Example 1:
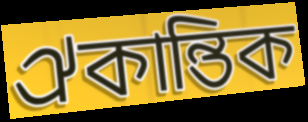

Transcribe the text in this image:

ঐকান্তিক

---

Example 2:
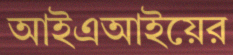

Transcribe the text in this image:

আইএআইয়ের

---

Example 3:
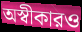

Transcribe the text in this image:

অস্বীকারও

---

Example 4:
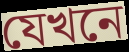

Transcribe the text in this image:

যেখনে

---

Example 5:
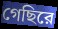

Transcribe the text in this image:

গেছিরে